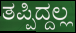
ತಪ್ಪಿದ್ದಲ್ಲ